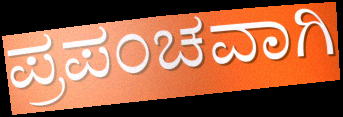
ಪ್ರಪಂಚವಾಗಿ